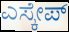
ಎಸ್ಕೇಪ್